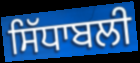
ਸਿੱਧਾਬਲੀ